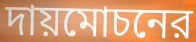
দায়মোচনের